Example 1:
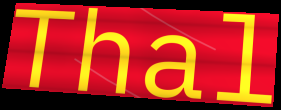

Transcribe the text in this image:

Thal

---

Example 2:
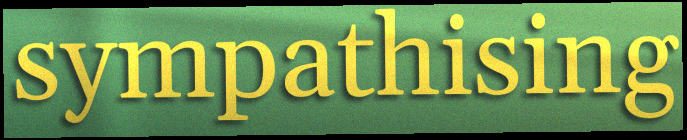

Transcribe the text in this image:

sympathising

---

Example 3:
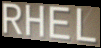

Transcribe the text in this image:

RHEL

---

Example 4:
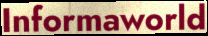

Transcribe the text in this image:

Informaworld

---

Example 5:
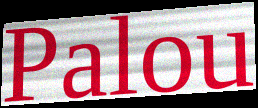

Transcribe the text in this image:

Palou